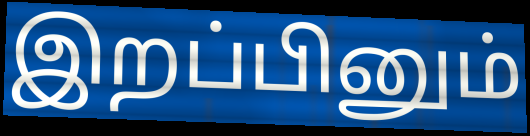
இறப்பினும்